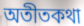
অতীতকথা